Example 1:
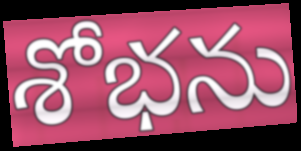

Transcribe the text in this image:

శోభను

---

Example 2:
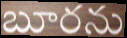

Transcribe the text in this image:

బూరను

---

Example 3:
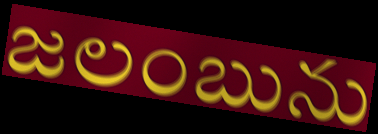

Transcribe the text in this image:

జలంబును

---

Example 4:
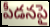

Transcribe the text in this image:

పీడనపై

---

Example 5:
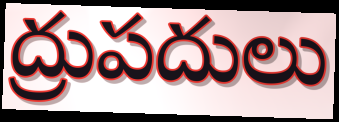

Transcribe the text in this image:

ద్రుపదులు